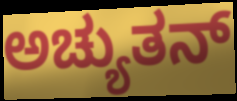
ಅಚ್ಯುತನ್